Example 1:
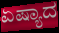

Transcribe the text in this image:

ಏಷ್ಯಾದ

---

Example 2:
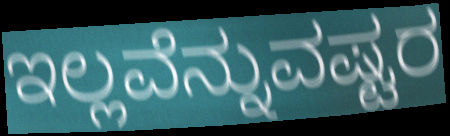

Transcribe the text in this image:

ಇಲ್ಲವೆನ್ನುವಷ್ಟರ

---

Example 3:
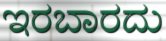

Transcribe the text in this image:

ಇರಬಾರದು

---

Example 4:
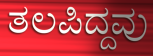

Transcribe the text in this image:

ತಲಪಿದ್ದವು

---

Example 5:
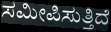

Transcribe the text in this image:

ಸಮೀಪಿಸುತ್ತಿದೆ